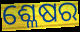
ଶ୍ଳେଷର